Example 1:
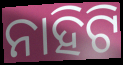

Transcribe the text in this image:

ନାହିଟି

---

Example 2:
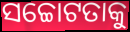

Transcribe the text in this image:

ସଚ୍ଚୋଟତାକୁ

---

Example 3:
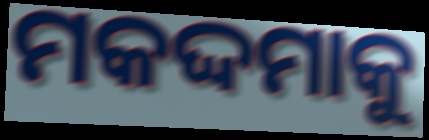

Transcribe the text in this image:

ମକଦ୍ଦମାକୁ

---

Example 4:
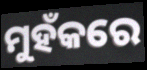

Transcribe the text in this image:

ମୁହଁକରେ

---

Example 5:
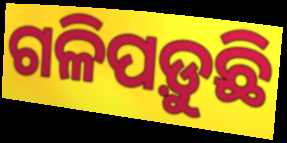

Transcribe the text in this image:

ଗଳିପଡ଼ୁଛି